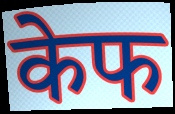
केफ